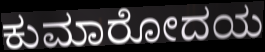
ಕುಮಾರೋದಯ